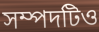
সম্পদটিও